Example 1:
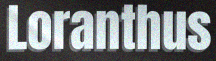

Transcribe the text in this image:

Loranthus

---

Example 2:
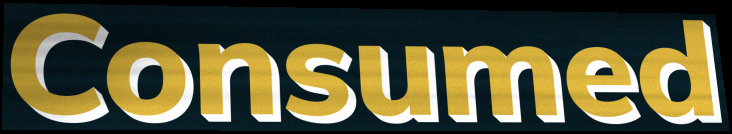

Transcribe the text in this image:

Consumed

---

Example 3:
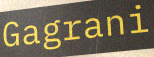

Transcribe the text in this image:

Gagrani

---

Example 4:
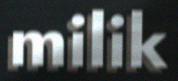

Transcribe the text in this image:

milik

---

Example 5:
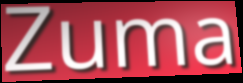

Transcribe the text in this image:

Zuma